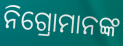
ନିଗ୍ରୋମାନଙ୍କ